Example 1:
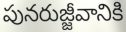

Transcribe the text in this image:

పునరుజ్జీవానికి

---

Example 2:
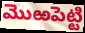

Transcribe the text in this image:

మొఱపెట్టి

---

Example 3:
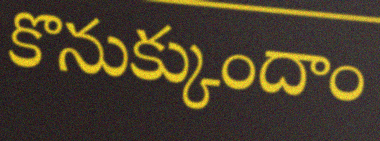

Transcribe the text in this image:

కొనుక్కుందాం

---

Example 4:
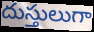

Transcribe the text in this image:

దుస్తులుగా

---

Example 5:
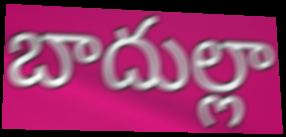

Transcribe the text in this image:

బాదుల్లా